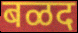
बळद